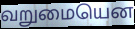
வறுமையென